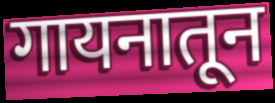
गायनातून